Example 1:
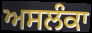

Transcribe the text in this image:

ਅਸਲੰਕਾ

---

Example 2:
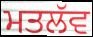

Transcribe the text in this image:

ਮਤਲੱਵ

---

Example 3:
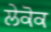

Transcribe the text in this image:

ਲੇਕੋਕ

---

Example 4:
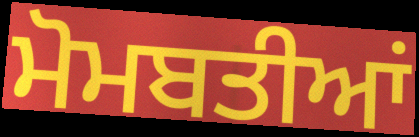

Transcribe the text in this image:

ਮੋਮਬਤੀਆਂ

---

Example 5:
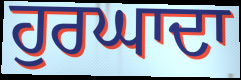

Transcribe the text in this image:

ਹੁਰਘਾਦਾ